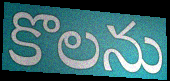
కొలను